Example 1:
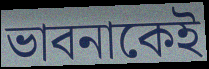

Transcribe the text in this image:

ভাবনাকেই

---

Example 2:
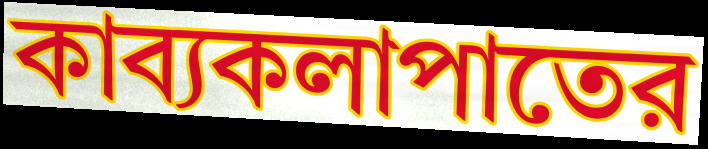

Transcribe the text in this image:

কাব্যকলাপাতের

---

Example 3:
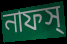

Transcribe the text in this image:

নাফস্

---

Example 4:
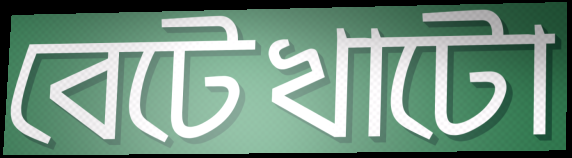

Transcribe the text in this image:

বেটেখাটো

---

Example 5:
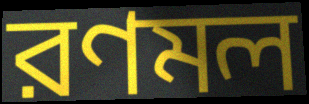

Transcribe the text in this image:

রণমল